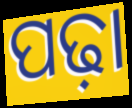
ପଢ଼ା